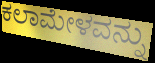
ಕಲಾಮೇಳವನ್ನು